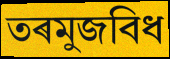
তৰমুজবিধ